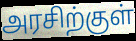
அரசிற்குள்